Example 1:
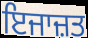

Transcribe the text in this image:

ਇਜਾਜ਼ਤ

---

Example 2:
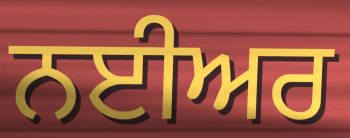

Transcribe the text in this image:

ਨਈਅਰ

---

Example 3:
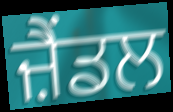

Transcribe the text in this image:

ਜ਼ੈਂਡਲ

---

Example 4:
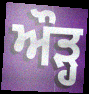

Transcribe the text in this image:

ਔੜ੍ਹ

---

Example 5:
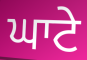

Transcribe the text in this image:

ਘਾਟੇ